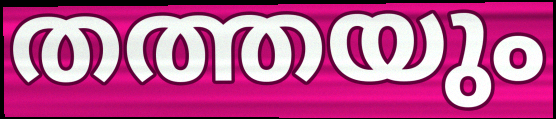
തത്തയും